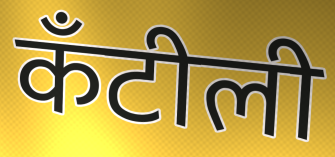
कँटीली